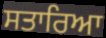
ਸਤਾਰਿਆ